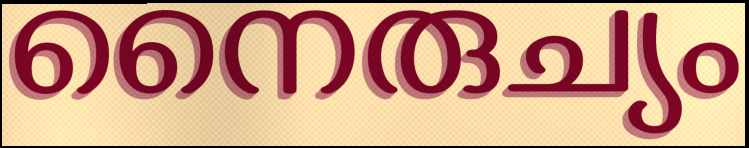
നൈരുച്യം